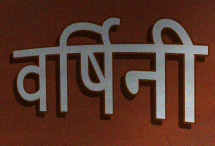
वर्षिनी